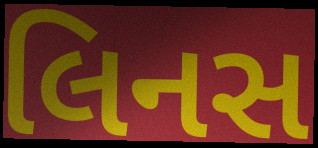
લિનસ